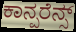
ಕಾನ್ಪರೆನ್ಸ್